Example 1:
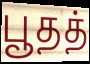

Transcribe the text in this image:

பூதத்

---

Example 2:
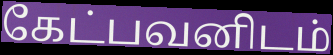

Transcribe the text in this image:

கேட்பவனிடம்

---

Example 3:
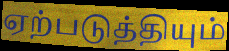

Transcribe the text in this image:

ஏற்படுத்தியும்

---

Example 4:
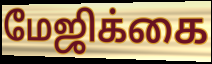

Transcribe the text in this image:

மேஜிக்கை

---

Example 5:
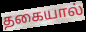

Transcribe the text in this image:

தகையால்